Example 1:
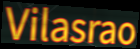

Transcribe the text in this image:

Vilasrao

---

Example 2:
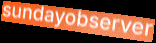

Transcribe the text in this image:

sundayobserver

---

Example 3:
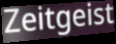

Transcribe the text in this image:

Zeitgeist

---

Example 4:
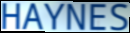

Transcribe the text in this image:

HAYNES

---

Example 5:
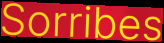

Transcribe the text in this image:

Sorribes